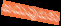
జదువుటకు